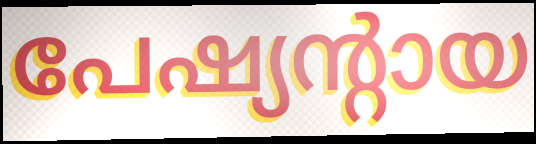
പേഷ്യന്റായ